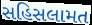
સહિસલામત